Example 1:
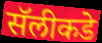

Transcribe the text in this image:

सॅलीकडे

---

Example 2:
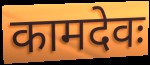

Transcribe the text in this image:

कामदेवः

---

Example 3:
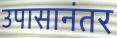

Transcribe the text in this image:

उपासानंतर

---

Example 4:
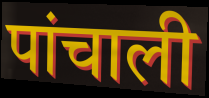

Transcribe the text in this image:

पांचाली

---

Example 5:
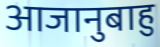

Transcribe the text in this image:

आजानुबाहु